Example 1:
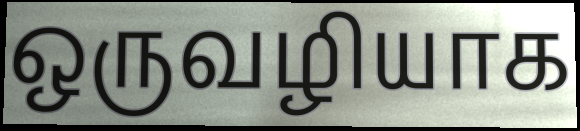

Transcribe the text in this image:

ஒருவழியாக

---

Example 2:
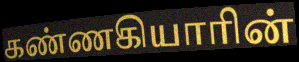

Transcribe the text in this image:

கண்ணகியாரின்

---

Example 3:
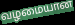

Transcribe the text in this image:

வழமையான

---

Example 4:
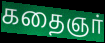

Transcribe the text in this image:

கதைஞர்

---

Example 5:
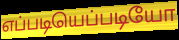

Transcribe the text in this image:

எப்படியெப்படியோ